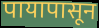
पायापासून